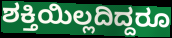
ಶಕ್ತಿಯಿಲ್ಲದಿದ್ದರೂ